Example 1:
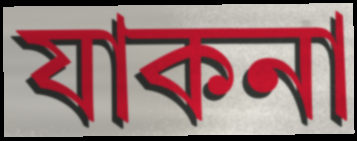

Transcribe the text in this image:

যাকনা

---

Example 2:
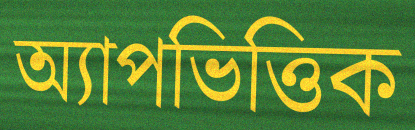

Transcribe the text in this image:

অ্যাপভিত্তিক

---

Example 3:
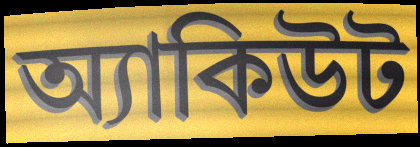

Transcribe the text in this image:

অ্যাকিউট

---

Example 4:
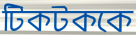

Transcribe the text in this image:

টিকটককে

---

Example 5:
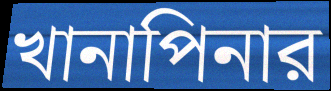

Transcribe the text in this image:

খানাপিনার